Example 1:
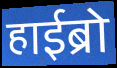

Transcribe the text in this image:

हाईब्रो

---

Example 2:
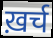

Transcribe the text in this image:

ख़र्च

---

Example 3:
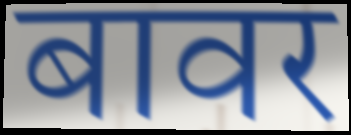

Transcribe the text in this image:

बावर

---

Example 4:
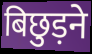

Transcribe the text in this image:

बिछुड़ने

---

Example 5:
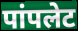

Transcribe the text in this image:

पांपलेट